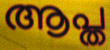
ആപ്ത